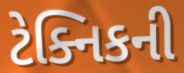
ટેક્નિકની